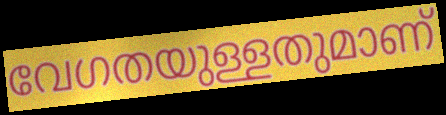
വേഗതയുള്ളതുമാണ്